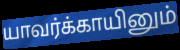
யாவர்க்காயினும்